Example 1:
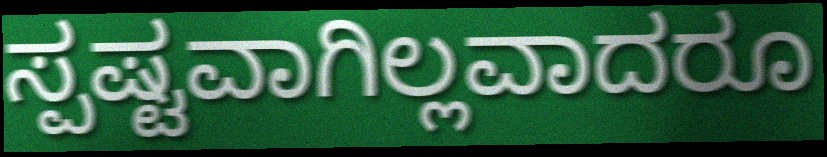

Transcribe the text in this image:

ಸ್ಪಷ್ಟವಾಗಿಲ್ಲವಾದರೂ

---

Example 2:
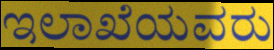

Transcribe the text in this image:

ಇಲಾಖೆಯವರು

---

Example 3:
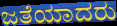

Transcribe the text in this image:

ಜತೆಯಾದರು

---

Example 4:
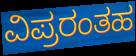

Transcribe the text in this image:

ವಿಪ್ರರಂತಹ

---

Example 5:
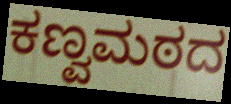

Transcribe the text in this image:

ಕಣ್ವಮಠದ